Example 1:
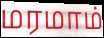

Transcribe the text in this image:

மரமாம்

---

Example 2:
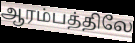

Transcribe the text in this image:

ஆரம்பத்திலே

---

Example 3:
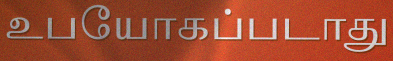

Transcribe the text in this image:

உபயோகப்படாது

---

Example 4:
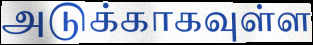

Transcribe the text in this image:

அடுக்காகவுள்ள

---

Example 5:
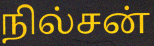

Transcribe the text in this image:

நில்சன்